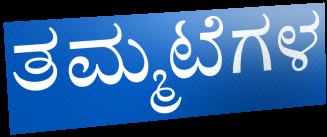
ತಮ್ಮಟೆಗಳ